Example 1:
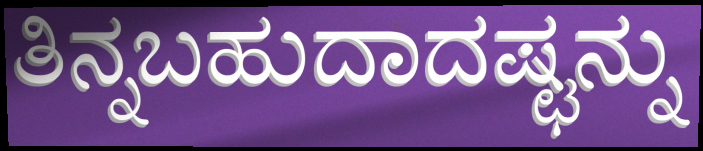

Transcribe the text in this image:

ತಿನ್ನಬಹುದಾದಷ್ಟನ್ನು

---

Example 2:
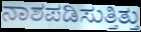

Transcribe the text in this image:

ನಾಶಪಡಿಸುತ್ತಿತ್ತು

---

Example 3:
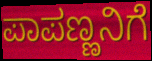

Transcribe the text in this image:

ಪಾಪಣ್ಣನಿಗೆ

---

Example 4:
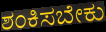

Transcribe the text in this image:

ಶಂಕಿಸಬೇಕು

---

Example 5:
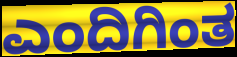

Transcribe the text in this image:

ಎಂದಿಗಿಂತ